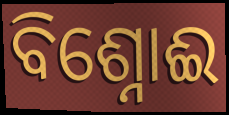
ବିଶ୍ନୋଈ